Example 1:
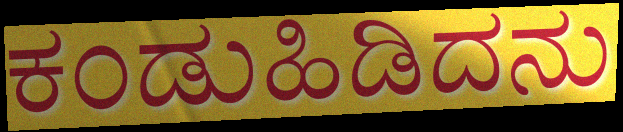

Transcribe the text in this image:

ಕಂಡುಹಿಡಿದನು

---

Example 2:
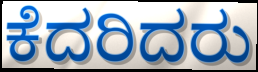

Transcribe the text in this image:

ಕೆದರಿದರು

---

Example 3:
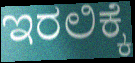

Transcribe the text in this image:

ಇರಲಿಕ್ಕೆ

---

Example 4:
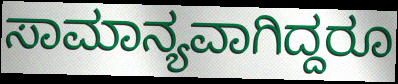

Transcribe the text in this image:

ಸಾಮಾನ್ಯವಾಗಿದ್ದರೂ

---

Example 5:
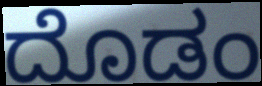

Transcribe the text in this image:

ದೊಡಂ